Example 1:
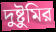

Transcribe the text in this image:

দুষ্টুমির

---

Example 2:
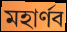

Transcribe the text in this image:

মহার্ণব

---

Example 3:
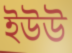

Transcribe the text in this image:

ইউউ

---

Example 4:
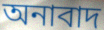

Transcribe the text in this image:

অনাবাদ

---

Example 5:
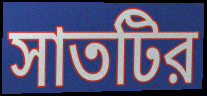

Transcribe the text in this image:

সাতটির